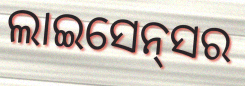
ଲାଇସେନ୍‌ସର